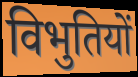
विभुतियों